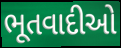
ભૂતવાદીઓ